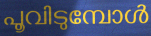
പൂവിടുമ്പോൾ